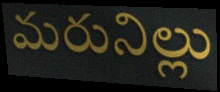
మరునిల్లు